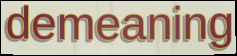
demeaning